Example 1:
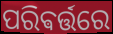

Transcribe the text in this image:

ପରିଵର୍ତ୍ତରେ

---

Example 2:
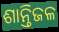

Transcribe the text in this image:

ଶାନ୍ତିଜଳ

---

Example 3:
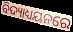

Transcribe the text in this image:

ବିଦ୍ୟାଧ୍ୟୟନରେ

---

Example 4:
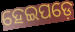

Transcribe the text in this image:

ହେଇପଡ଼େ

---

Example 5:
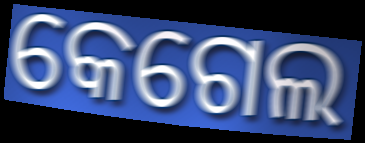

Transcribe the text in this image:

କେଗେଲ